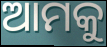
ଆମକୁ